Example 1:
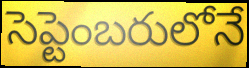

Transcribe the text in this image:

సెప్టెంబరులోనే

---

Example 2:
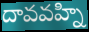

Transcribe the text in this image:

దావవహ్ని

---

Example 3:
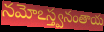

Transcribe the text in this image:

నమోఽస్త్వనంతాయ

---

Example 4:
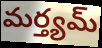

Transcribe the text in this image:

మర్త్యమ్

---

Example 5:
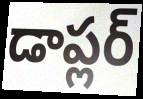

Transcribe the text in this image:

డాప్లర్